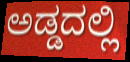
ಅಡ್ಡದಲ್ಲಿ